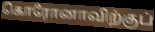
கொரோனாவிற்குப்